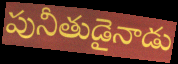
పునీతుడైనాడు